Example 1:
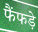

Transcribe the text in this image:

फैंफड़े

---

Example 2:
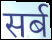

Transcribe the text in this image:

सर्ब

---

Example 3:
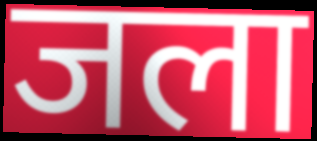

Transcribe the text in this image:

जला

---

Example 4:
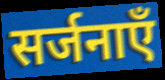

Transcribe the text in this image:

सर्जनाएँ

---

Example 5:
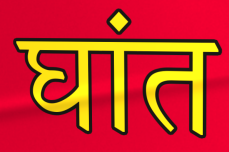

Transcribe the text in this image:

घांत